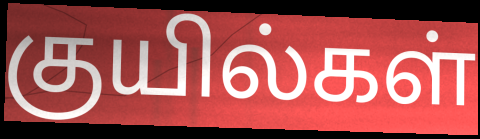
குயில்கள்